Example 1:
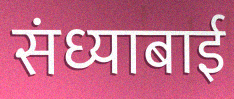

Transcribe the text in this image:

संध्याबाई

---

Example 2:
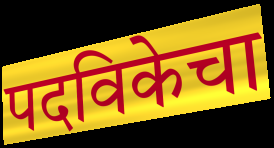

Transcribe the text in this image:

पदविकेचा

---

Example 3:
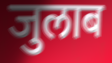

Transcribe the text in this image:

जुलाब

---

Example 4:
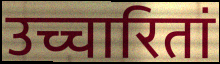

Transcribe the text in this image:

उच्चारितां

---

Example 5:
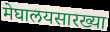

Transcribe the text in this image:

मेघालयसारख्या